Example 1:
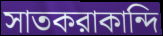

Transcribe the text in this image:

সাতকরাকান্দি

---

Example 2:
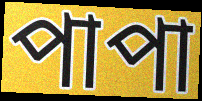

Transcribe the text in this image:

পাপা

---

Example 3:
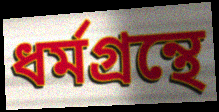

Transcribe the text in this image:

ধর্মগ্রন্থে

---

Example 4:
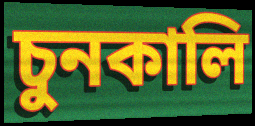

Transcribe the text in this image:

চুনকালি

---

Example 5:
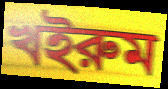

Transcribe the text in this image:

খইরুম